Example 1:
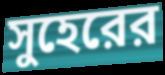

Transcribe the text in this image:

সুহেরের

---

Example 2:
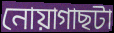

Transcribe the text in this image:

নোয়াগাছটা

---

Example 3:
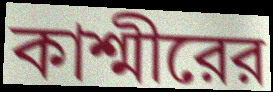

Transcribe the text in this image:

কাশ্মীরের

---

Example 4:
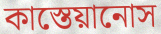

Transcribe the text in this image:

কাস্তেয়ানোস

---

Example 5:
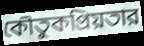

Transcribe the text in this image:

কৌতুকপ্রিয়তার